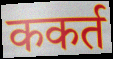
ककर्त